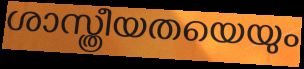
ശാസ്ത്രീയതയെയും